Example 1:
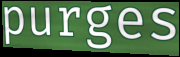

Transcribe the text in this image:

purges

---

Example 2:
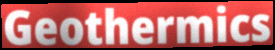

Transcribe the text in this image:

Geothermics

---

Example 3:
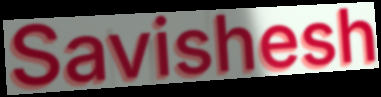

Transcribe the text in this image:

Savishesh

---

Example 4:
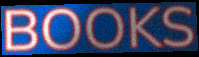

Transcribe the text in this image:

BOOKS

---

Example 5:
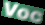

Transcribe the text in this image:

Voc